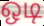
ஒடி